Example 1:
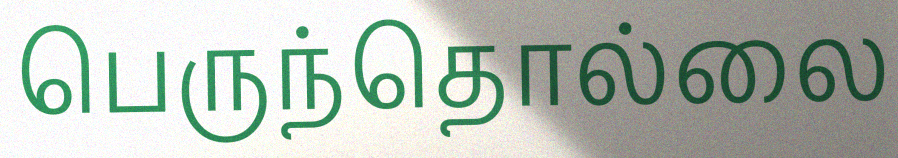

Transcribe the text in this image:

பெருந்தொல்லை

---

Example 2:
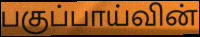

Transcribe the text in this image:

பகுப்பாய்வின்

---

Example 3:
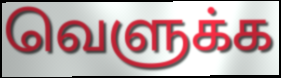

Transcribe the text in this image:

வெளுக்க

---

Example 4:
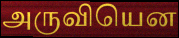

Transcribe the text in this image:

அருவியென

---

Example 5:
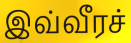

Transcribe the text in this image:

இவ்வீரச்